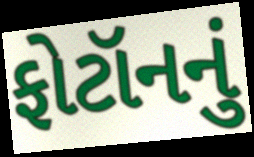
ફોટૉનનું